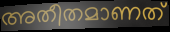
അതീതമാണത്